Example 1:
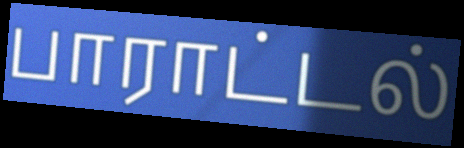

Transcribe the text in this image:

பாராட்டல்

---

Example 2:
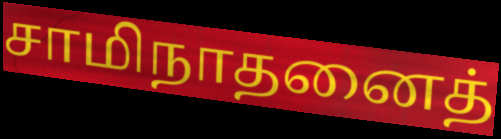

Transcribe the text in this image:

சாமிநாதனைத்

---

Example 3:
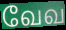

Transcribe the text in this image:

வேவ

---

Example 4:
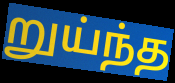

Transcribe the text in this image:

றுய்ந்த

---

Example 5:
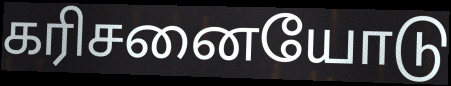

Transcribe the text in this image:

கரிசனையோடு